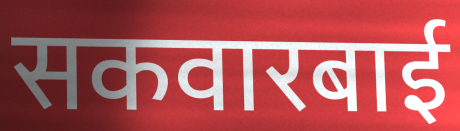
सकवारबाई